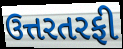
ઉત્તરતરફી